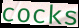
cocks